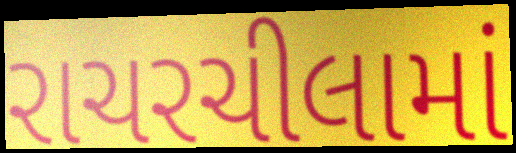
રાચરચીલામાં